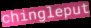
chingleput